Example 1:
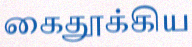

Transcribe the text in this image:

கைதூக்கிய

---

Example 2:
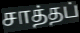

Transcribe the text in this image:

சாத்தப்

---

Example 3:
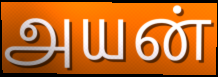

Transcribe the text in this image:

அயன்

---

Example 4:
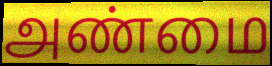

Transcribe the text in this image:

அண்மை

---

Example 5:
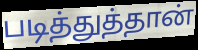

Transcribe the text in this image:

படித்துத்தான்